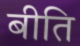
बीति